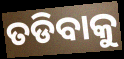
ତଡିବାକୁ